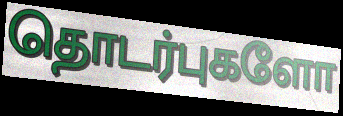
தொடர்புகளோ